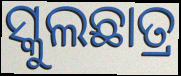
ସ୍କୁଲଛାତ୍ର